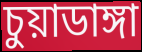
চুয়াডাঙ্গা